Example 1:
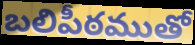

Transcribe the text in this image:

బలిపీఠముతో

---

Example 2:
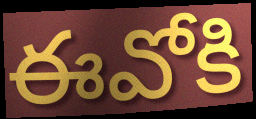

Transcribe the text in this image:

ఈవోకి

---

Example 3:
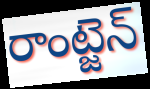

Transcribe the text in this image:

రాంట్జెన్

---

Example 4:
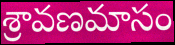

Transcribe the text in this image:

శ్రావణమాసం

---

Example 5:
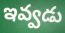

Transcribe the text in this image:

ఇవ్వడు